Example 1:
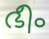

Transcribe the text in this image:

ഭീം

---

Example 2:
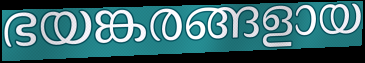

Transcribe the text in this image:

ഭയങ്കരങ്ങളായ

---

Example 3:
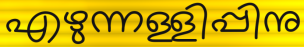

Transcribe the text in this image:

എഴുന്നള്ളിപ്പിനു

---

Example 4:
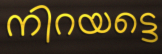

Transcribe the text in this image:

നിറയട്ടെ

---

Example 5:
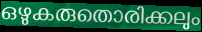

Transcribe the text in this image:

ഒഴുകരുതൊരിക്കലും